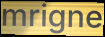
mrigne